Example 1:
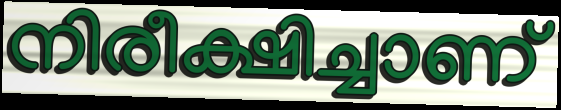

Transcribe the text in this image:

നിരീക്ഷിച്ചാണ്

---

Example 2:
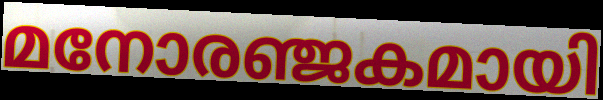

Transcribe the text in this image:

മനോരഞ്ജകമായി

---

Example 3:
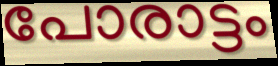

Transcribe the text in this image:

പോരാട്ടം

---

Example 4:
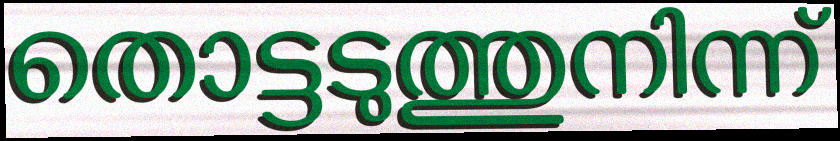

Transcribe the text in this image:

തൊട്ടടുത്തുനിന്ന്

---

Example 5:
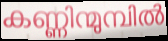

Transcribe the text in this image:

കണ്ണിന്മുമ്പിൽ